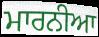
ਮਾਰਨੀਆ